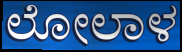
ಲೋಲಾಳ